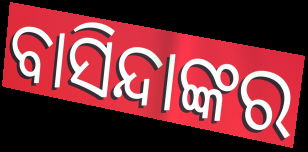
ବାସିନ୍ଦାଙ୍କର